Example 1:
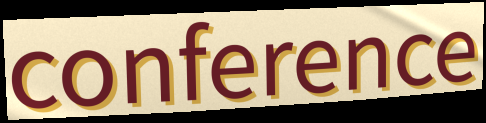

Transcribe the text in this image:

conference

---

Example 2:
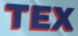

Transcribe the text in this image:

TEX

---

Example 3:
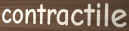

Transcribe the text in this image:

contractile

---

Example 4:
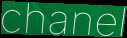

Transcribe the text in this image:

chanel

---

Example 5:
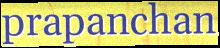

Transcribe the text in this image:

prapanchan